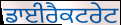
ਡਾਈਰੈਕਟਰੇਟ